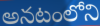
అనటంలోని